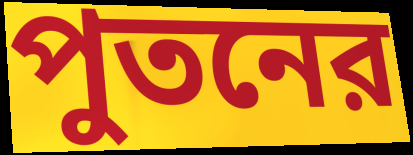
পুতনের